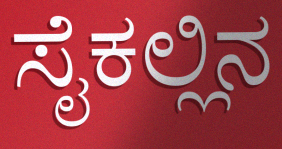
ಸೈಕಲ್ಲಿನ